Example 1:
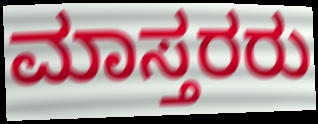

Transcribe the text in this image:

ಮಾಸ್ತರರು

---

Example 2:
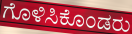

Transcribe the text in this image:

ಗೊಳಿಸಿಕೊಂಡರು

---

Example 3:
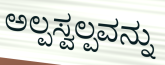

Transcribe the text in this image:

ಅಲ್ಪಸ್ವಲ್ಪವನ್ನು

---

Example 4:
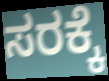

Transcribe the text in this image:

ಸರಕ್ಕೆ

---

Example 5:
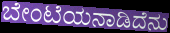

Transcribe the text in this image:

ಬೇಂಟೆಯನಾಡಿದೆನು